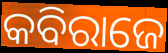
କବିରାଜେ